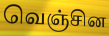
வெஞ்சின